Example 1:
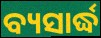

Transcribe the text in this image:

ବ୍ୟସାର୍ଦ୍ଧ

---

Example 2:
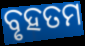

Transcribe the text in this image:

ବୃହତମ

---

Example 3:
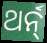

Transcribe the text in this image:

ଥର୍ନ୍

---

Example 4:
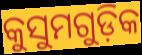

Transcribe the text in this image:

କୁସୁମଗୁଡ଼ିକ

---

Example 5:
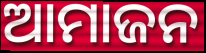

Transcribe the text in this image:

ଆମାଜନ